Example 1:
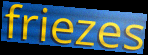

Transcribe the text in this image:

friezes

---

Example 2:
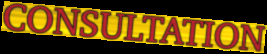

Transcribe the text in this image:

CONSULTATION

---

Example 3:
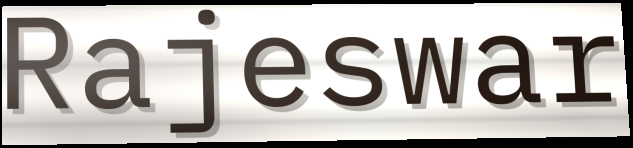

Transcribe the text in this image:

Rajeswar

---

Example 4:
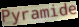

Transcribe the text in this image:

Pyramide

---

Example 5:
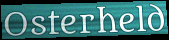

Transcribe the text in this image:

Osterheld